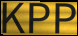
KPP